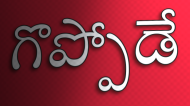
గొప్పోడే